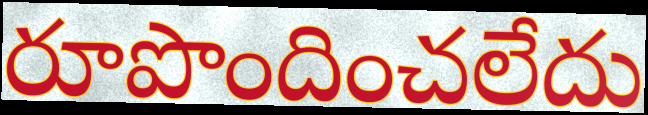
రూపొందించలేదు